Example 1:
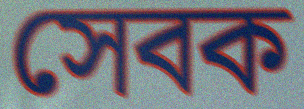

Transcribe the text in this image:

সেবক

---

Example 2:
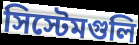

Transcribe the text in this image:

সিস্টেমগুলি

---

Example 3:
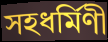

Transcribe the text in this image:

সহধর্মিণী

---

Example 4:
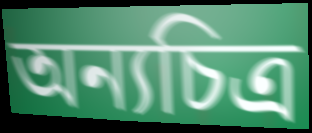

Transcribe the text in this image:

অন্যচিত্র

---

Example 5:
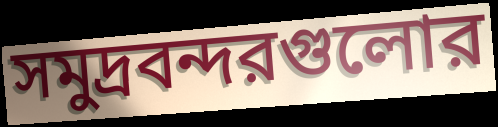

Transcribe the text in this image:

সমুদ্রবন্দরগুলোর